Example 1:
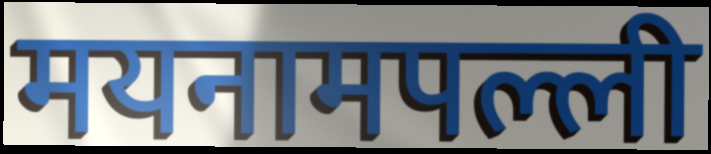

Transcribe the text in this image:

मयनामपल्ली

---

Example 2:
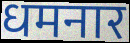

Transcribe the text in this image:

धमनार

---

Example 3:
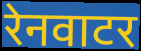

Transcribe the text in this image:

रेनवाटर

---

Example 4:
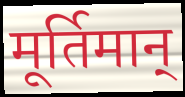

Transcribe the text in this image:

मूर्तिमान्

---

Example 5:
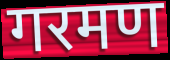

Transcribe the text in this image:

गरमण